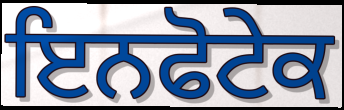
ਇਨਫੋਟੇਕ